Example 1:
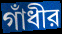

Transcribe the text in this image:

গাঁধীর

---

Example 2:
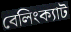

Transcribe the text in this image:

বেলিংক্যাট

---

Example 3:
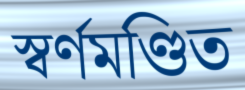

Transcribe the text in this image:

স্বর্ণমণ্ডিত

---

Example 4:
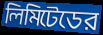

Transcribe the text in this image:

লিমিটেডের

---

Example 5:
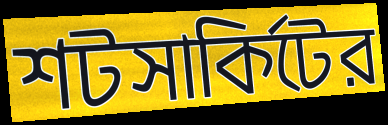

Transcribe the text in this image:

শটসার্কিটের